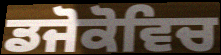
ਡਜੋਕੋਵਿਚ